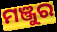
ମଞ୍ଜୁର